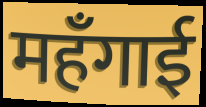
महँगाई